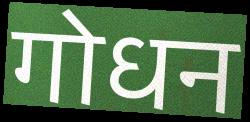
गोधन